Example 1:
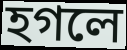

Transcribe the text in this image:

হগলে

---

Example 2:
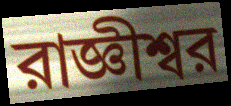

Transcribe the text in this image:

রাজ্ঞীশ্বর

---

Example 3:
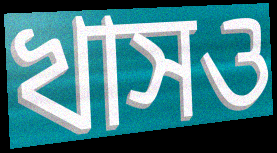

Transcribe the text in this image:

খাসও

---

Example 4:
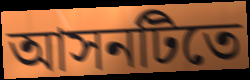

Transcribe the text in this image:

আসনটিতে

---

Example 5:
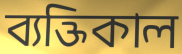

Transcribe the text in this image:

ব্যক্তিকাল